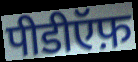
पीडीऍफ़